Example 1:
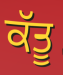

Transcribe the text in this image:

ਕੱਤੂ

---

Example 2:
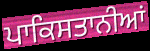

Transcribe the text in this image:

ਪਾਕਿਸਤਾਨੀਆਂ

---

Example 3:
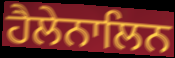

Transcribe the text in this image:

ਹੈਲੇਨਾਲਿਨ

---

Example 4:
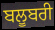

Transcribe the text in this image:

ਬਲੂਬਰੀ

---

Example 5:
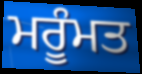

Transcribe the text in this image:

ਮਰੂੰਮਤ